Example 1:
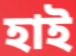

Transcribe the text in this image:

হাই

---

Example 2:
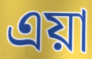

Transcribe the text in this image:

এয়া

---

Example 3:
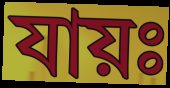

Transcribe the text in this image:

যায়ঃ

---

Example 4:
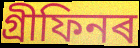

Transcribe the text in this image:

গ্ৰীফিনৰ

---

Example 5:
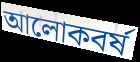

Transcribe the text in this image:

আলোকবৰ্ষ